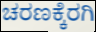
ಚರಣಕ್ಕೆರಗಿ